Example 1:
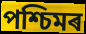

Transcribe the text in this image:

পশ্চিমৰ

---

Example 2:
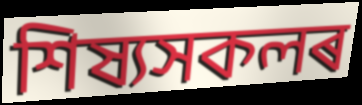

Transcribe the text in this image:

শিষ্যসকলৰ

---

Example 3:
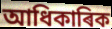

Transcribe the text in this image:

আধিকাৰিক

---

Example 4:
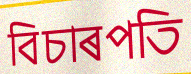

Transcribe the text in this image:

বিচাৰপতি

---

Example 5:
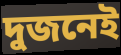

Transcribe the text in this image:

দুজনেই